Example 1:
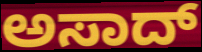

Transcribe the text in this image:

ಅಸಾದ್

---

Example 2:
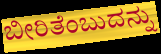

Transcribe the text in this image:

ಬೀರಿತೆಂಬುದನ್ನು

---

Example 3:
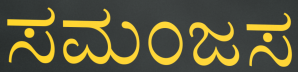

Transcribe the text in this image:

ಸಮಂಜಸ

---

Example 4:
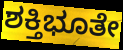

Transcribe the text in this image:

ಶಕ್ತಿಭೂತೇ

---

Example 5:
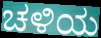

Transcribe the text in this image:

ಚಳಿಯ